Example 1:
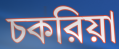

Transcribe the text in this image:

চকরিয়া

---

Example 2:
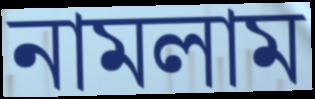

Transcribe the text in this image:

নামলাম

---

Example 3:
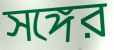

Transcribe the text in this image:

সঙ্গের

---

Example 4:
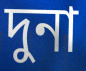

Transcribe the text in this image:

দুনা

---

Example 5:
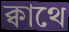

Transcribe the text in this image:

ক্বাথে